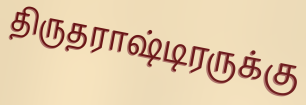
திருதராஷ்டிரருக்கு